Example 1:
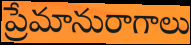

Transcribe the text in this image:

ప్రేమానురాగాలు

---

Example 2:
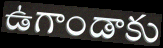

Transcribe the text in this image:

ఉగాండాకు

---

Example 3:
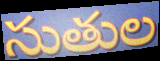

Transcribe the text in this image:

సుతుల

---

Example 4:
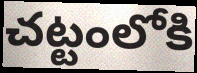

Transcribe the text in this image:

చట్టంలోకి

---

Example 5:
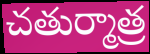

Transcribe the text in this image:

చతుర్మాత్ర